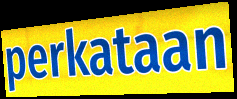
perkataan